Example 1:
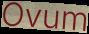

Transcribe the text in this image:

Ovum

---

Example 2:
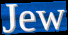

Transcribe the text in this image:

Jew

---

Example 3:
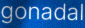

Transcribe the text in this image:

gonadal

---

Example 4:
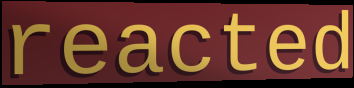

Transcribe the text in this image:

reacted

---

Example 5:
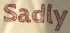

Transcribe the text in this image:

Sadly